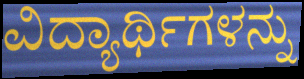
ವಿದ್ಯಾರ್ಥಿಗಳನ್ನು